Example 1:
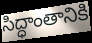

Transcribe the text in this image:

సిద్ధాంతానికి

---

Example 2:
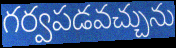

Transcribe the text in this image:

గర్వపడవచ్చును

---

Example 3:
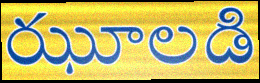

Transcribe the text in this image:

ఝూలడి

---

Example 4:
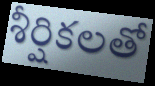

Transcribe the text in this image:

శీర్షికలతో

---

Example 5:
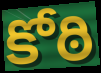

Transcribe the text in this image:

కోఠి